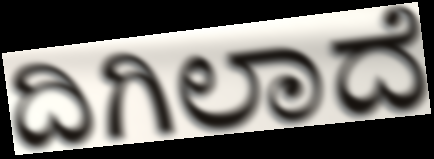
ದಿಗಿಲಾದೆ